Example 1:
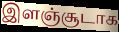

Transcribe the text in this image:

இளஞ்சூடாக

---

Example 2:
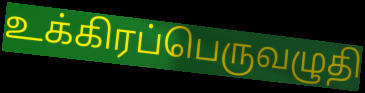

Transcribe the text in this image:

உக்கிரப்பெருவழுதி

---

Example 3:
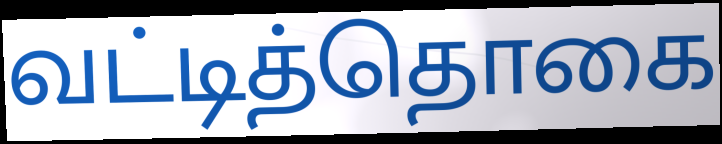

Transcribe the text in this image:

வட்டித்தொகை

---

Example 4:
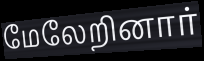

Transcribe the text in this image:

மேலேறினார்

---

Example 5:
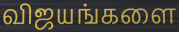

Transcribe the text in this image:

விஜயங்களை